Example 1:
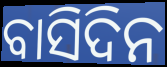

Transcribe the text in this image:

ବାସିଦିନ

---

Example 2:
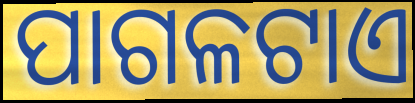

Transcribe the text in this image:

ପାଗଳଟାଏ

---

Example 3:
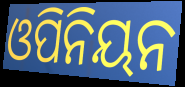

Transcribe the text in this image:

ଓପିନିୟନ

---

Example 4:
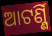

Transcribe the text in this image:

ଆଟର୍ଣ୍ଣି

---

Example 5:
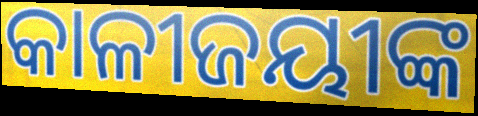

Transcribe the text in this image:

କାଳୀଜୟୀଙ୍କ